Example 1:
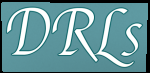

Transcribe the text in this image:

DRLs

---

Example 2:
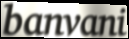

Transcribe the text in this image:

banvani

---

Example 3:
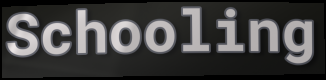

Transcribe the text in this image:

Schooling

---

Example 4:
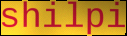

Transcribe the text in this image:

shilpi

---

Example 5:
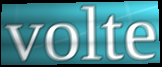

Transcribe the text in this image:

volte